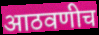
आठवणीच